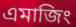
এমাজিং